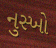
નુસ્ખો